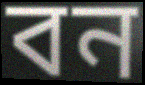
বন